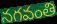
నగవంతి